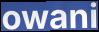
owani